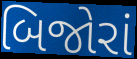
બિજોરાં